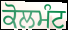
ਕੋਲਮੰਟ